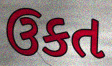
ઉકત